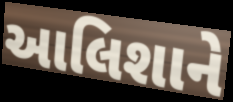
આલિશાને